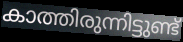
കാത്തിരുന്നിട്ടുണ്ട്